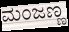
ಮಂಜಣ್ಣ